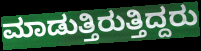
ಮಾಡುತ್ತಿರುತ್ತಿದ್ದರು